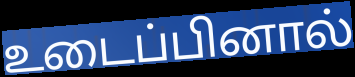
உடைப்பினால்